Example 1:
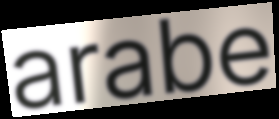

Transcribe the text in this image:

arabe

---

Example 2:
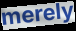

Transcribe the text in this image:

merely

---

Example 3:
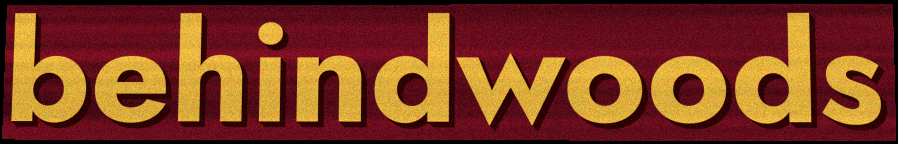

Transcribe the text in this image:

behindwoods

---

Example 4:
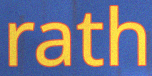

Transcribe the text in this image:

rath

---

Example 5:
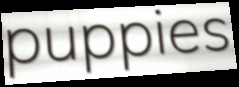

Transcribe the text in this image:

puppies